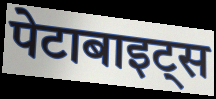
पेटाबाइट्स